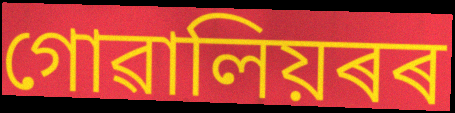
গোৱালিয়ৰৰ